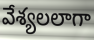
వేశ్యలలాగా